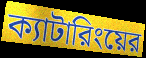
ক্যাটারিংয়ের